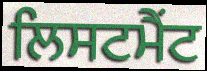
ਲਿਸਟਮੈਂਟ